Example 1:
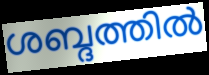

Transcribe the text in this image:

ശബ്ദത്തിൽ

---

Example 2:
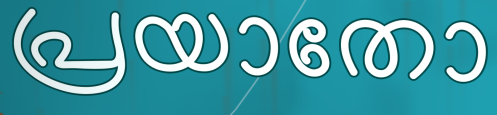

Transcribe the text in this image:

പ്രയാതോ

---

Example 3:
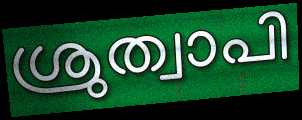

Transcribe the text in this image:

ശ്രുത്വാപി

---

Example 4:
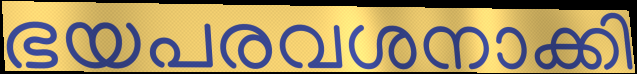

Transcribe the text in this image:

ഭയപരവശനാക്കി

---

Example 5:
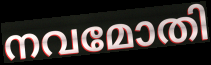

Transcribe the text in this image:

നവമോതി